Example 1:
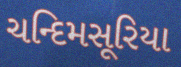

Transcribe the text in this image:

ચન્દિમસૂરિયા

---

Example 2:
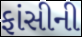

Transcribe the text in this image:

ફાંસીની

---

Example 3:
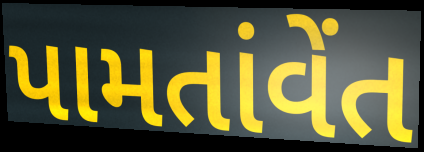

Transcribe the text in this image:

પામતાંવેંત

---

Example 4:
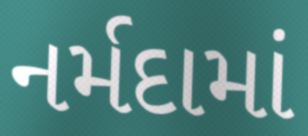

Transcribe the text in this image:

નર્મદામાં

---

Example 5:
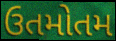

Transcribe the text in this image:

ઉતમોતમ